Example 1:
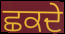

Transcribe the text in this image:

ਛਕਦੇ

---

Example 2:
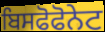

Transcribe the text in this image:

ਬਿਸਫੋਫੋਨੇਟ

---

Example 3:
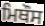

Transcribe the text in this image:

ਮਿਥੌਸ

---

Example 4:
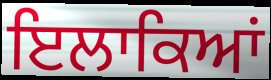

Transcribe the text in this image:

ਇਲਾਕਿਆਂ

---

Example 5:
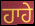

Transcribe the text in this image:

ਹਾਹੇ